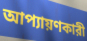
আপ্যায়ণকারী